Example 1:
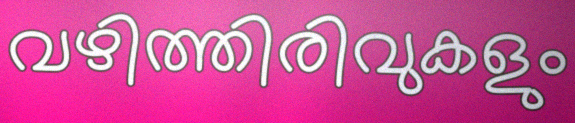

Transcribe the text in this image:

വഴിത്തിരിവുകളും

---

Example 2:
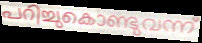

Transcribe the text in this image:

പറിച്ചുകൊണ്ടുവന്ന്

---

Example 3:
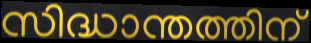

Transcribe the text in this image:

സിദ്ധാന്തത്തിന്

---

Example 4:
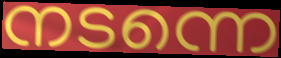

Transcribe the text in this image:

നടന്നെ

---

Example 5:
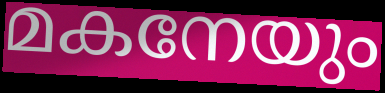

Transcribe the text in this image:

മകനേയും